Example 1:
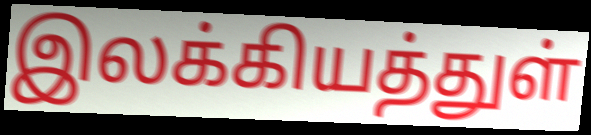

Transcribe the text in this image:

இலக்கியத்துள்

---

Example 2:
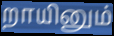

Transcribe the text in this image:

றாயினும்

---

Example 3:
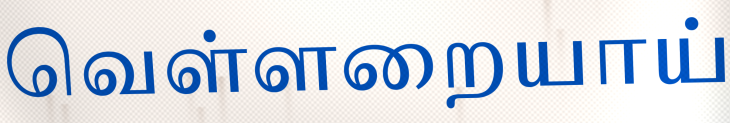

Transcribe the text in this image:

வெள்ளறையாய்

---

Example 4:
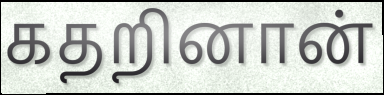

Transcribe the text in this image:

கதறினான்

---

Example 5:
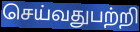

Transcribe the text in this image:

செய்வதுபற்றி